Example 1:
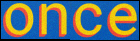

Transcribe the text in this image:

once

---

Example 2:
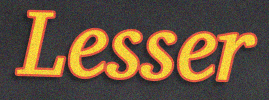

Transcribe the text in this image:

Lesser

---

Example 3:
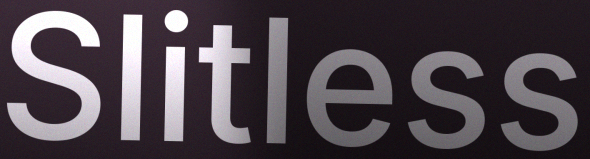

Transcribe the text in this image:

Slitless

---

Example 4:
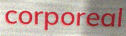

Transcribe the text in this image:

corporeal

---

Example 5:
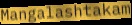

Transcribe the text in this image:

Mangalashtakam